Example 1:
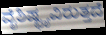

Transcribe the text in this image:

ವೈಶಿಷ್ಟ್ಯವಿರುತ್ತದೆ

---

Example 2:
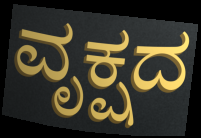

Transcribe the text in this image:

ವೃಕ್ಷದ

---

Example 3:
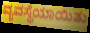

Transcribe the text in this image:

ವ್ಯವಸ್ಥೆಯಾಯಿತು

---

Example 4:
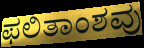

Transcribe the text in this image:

ಫಲಿತಾಂಶವು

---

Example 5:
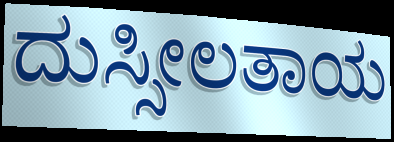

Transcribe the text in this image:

ದುಸ್ಸೀಲತಾಯ